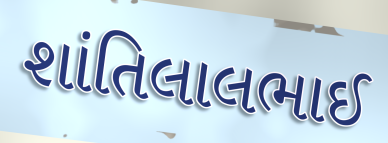
શાંતિલાલભાઈ